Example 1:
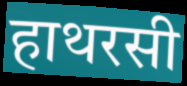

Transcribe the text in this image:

हाथरसी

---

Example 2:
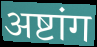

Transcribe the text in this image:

अष्टांग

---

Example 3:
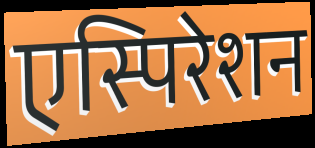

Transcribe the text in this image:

एस्पिरेशन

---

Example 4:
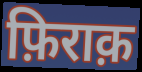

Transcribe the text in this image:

फ़िराक़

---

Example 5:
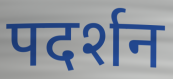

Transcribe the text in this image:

पदर्शन